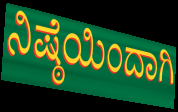
ನಿಷ್ಠೆಯಿಂದಾಗಿ